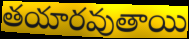
తయారవుతాయి